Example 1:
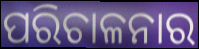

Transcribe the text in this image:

ପରିଚାଳନାର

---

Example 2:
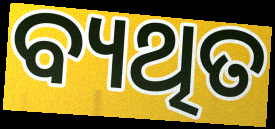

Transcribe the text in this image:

ବ୍ୟଥିତ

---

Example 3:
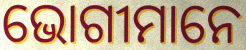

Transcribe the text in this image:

ଭୋଗୀମାନେ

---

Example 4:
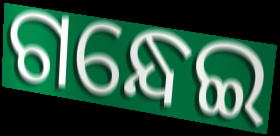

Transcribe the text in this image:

ଗନ୍ଧେଇ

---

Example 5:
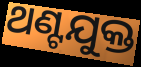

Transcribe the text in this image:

ଥଣ୍ଟଯୁକ୍ତ